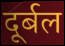
दूर्बल